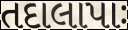
તદાલાપાઃ